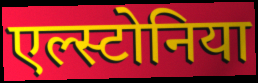
एल्स्टोनिया